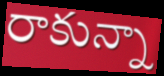
రాకున్నా